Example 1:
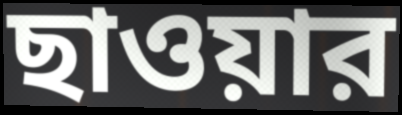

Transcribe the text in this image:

ছাওয়ার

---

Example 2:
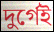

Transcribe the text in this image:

দুর্গেই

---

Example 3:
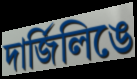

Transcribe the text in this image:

দার্জিলিঙে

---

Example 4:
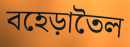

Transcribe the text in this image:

বহেড়াতৈল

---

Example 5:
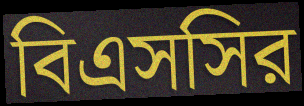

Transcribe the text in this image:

বিএসসির